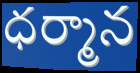
ధర్మాన